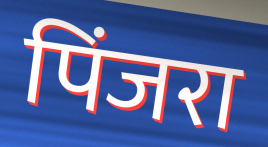
पिंजरा